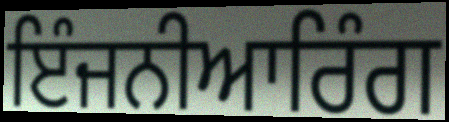
ਇੰਜਨੀਆਰਿੰਗ